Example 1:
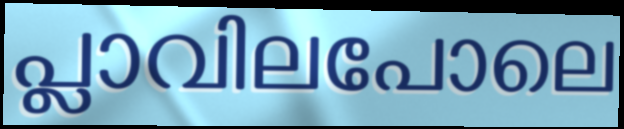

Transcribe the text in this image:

പ്ലാവിലപോലെ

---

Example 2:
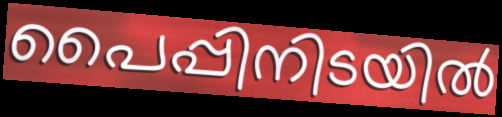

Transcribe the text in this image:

പൈപ്പിനിടയിൽ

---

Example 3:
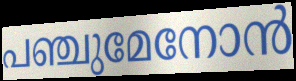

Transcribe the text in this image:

പഞ്ചുമേനോൻ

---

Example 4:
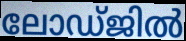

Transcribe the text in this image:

ലോഡ്ജിൽ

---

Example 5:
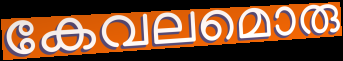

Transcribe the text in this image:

കേവലമൊരു